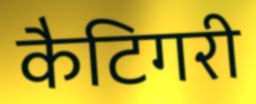
कैटिगरी